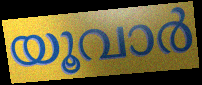
യൂവാർ